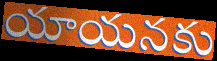
యాయనకు